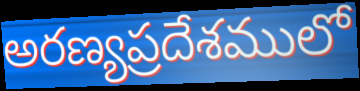
అరణ్యప్రదేశములో